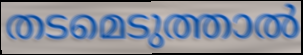
തടമെടുത്താൽ